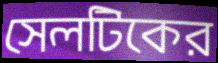
সেলটিকের